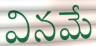
వినమే